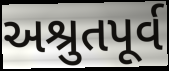
અશ્રુતપૂર્વ